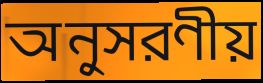
অনুসরণীয়